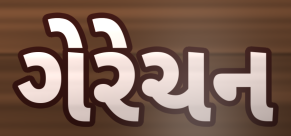
ગેરેચન